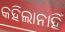
କହିଲାନାହିଁ